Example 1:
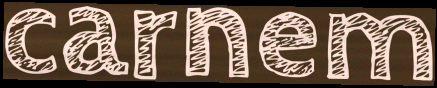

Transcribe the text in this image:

carnem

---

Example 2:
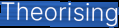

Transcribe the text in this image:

Theorising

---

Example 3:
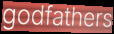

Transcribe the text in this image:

godfathers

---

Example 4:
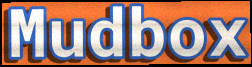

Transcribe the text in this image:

Mudbox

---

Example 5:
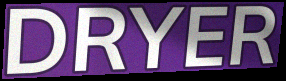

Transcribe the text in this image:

DRYER